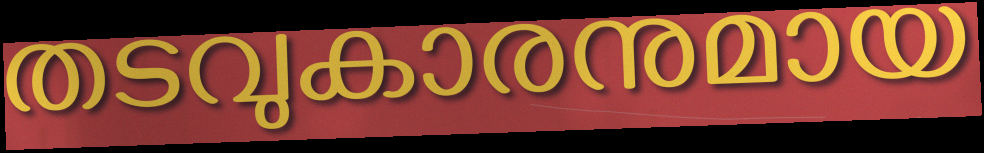
തടവുകാരനുമായ